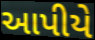
આપીયે